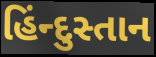
હિંન્દુસ્તાન